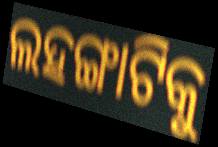
ଲହଙ୍ଗାଟିକୁ